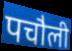
पचौली